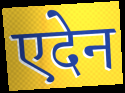
एदेन